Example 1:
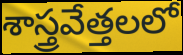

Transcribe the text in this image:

శాస్త్రవేత్తలలో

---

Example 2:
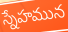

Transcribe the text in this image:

స్నేహమున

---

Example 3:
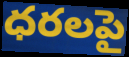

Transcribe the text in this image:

ధరలపై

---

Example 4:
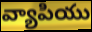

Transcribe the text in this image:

వ్యాపియు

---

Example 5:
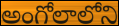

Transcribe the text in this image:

అంగోలాలోని